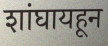
शांघायहून